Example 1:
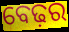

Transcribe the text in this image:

ବେଢ଼ର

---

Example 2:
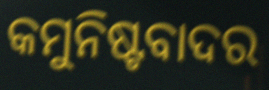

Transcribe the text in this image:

କମୁନିଷ୍ଟବାଦର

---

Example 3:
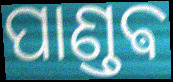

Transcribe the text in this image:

ପାଣ୍ଡଵ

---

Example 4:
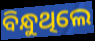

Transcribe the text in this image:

ବିନ୍ଧୁଥିଲେ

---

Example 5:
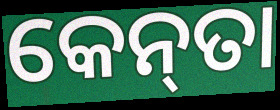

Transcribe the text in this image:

କେନ୍‌ତା